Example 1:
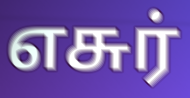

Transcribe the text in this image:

எசுர்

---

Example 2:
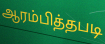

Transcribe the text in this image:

ஆரம்பித்தபடி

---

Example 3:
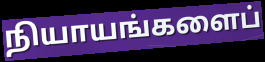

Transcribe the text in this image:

நியாயங்களைப்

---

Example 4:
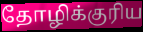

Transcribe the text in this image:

தோழிக்குரிய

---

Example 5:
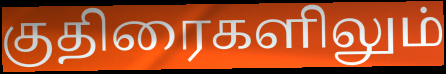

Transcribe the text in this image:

குதிரைகளிலும்